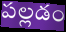
పల్లడం